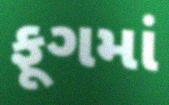
ફૂગમાં